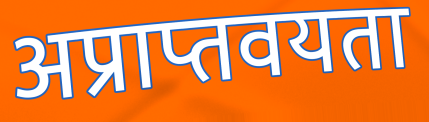
अप्राप्तवयता